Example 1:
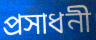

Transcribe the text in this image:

প্রসাধনী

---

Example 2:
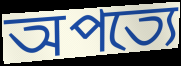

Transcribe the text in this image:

অপত্যে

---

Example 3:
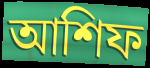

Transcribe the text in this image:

আশিফ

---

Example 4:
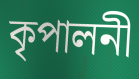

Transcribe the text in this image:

কৃপালনী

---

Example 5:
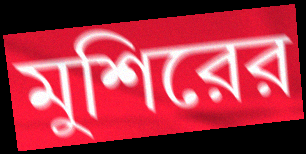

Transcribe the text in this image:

মুশিরের